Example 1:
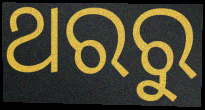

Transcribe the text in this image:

ଥରରୁ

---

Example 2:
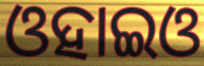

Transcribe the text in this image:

ଓହାଇଓ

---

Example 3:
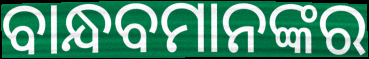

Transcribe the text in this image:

ବାନ୍ଧବମାନଙ୍କର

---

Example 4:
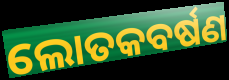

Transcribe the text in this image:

ଲୋତକବର୍ଷଣ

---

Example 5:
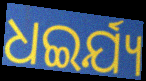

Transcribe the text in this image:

ଧଇର୍ଯ୍ୟ